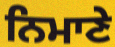
ਨਿਮਾਣੇ